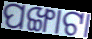
ପଙ୍ଖାଟା